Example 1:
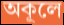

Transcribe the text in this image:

অকূলে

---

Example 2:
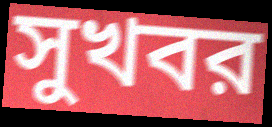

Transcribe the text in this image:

সুখবর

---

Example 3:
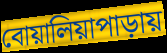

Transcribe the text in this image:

বোয়ালিয়াপাড়ায়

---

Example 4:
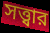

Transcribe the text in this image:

সত্ত্বার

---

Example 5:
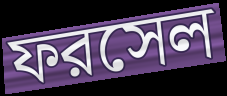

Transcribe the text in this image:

ফরসেল